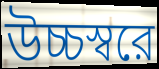
উচ্চস্বরে